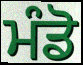
ਮੰਡੋ